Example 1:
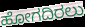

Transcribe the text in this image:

ಹೋಗದಿರಲು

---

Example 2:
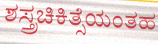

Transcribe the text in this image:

ಶಸ್ತ್ರಚಿಕಿತ್ಸೆಯಂತಹ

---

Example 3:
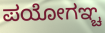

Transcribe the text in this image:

ಪಯೋಗಞ್ಚ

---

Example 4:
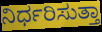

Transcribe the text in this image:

ನಿರ್ಧರಿಸುತ್ತಾ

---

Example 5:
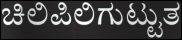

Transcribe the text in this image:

ಚಿಲಿಪಿಲಿಗುಟ್ಟುತ